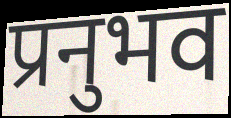
प्रनुभव